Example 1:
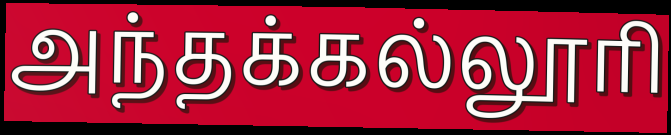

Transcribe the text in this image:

அந்தக்கல்லூரி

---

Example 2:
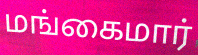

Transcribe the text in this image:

மங்கைமார்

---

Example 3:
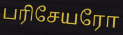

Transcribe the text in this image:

பரிசேயரோ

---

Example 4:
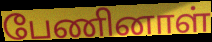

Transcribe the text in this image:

பேணினாள்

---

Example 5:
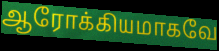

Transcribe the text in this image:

ஆரோக்கியமாகவே